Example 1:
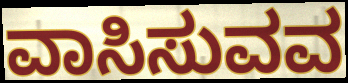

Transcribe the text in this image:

ವಾಸಿಸುವವ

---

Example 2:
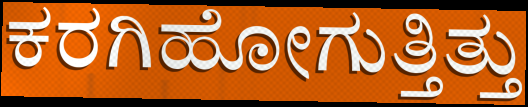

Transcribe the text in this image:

ಕರಗಿಹೋಗುತ್ತಿತ್ತು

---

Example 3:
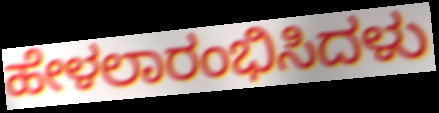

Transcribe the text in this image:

ಹೇಳಲಾರಂಭಿಸಿದಳು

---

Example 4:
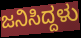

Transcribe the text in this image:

ಜನಿಸಿದ್ದಳು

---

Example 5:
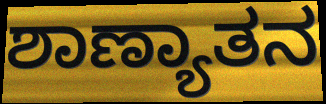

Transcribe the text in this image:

ಶಾಣ್ಯಾತನ